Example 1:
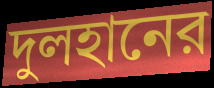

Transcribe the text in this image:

দুলহানের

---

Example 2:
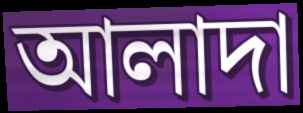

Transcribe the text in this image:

আলাদা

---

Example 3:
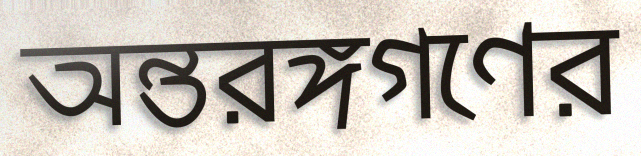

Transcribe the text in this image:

অন্তরঙ্গগণের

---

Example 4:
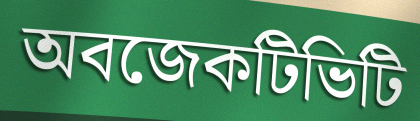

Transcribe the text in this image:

অবজেকটিভিটি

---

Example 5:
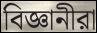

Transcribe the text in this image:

বিজ্ঞানীরা